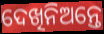
ଦେଖିନିଅନ୍ତେ